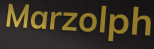
Marzolph